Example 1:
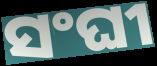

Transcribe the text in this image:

ସଂଘୀ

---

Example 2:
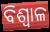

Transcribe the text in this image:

ବିଶ୍ୱାଳ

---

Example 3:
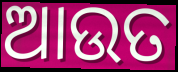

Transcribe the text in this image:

ଆଉତ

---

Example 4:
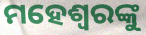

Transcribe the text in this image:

ମହେଶ୍ଵରଙ୍କୁ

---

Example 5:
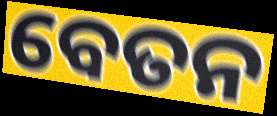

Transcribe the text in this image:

ବେତନ